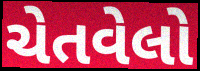
ચેતવેલો